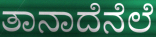
ತಾನಾದೆನೆಲೆ